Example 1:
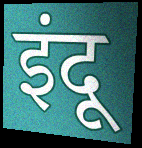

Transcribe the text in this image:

इंदू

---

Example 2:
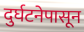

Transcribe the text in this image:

दुर्घटनेपासून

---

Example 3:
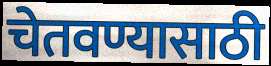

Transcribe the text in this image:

चेतवण्यासाठी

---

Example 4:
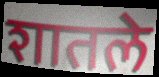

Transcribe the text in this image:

शातले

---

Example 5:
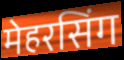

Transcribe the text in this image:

मेहरसिंग